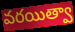
వరయిత్వా